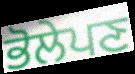
ਭੋਲੇਪਣ